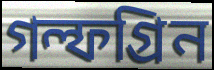
গল্ফগ্রিন